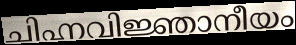
ചിഹ്നവിജ്ഞാനീയം